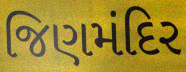
જિણમંદિર